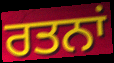
ਰਤਨਾਂ